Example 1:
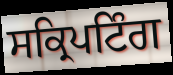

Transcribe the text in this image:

ਸਕ੍ਰਿਪਟਿੰਗ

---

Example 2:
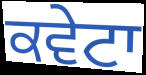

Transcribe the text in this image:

ਕਵੇਟਾ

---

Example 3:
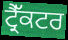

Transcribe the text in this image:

ਟ੍ਰੈੱਕਟਰ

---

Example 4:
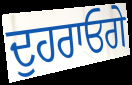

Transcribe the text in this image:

ਦੁਹਰਾਓਗੇ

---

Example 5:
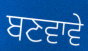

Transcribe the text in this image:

ਬਣਵਾਵੇ